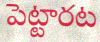
పెట్టారట